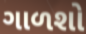
ગાળશો